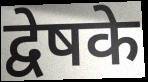
द्वेषके